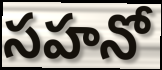
సహనో